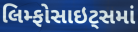
લિમ્ફોસાઇટ્સમાં